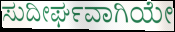
ಸುದೀರ್ಘವಾಗಿಯೇ